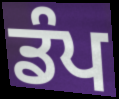
ਡੰਪ